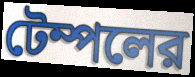
টেম্পলের